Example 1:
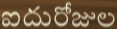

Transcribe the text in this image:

ఐదురోజుల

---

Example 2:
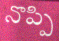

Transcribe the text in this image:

నొప్పి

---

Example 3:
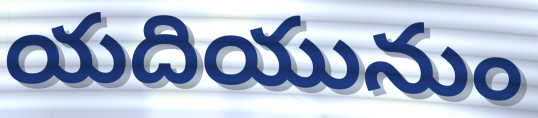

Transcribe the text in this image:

యదియునుం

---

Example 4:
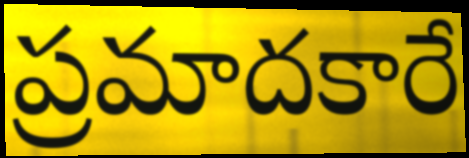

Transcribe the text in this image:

ప్రమాదకారే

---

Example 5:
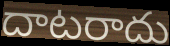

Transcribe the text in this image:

దాటరాదు